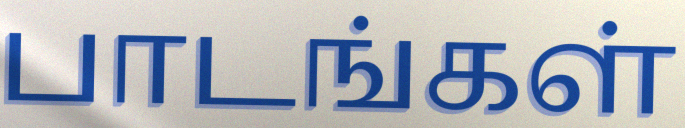
பாடங்கள்